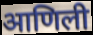
आणिली